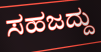
ಸಹಜದ್ದು